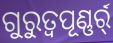
ଗୁରୁତ୍ୱପୂଣ୍ଣର୍ର୍